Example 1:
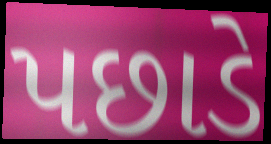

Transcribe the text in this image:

પછાડે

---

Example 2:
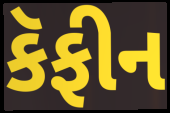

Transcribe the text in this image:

કૅફીન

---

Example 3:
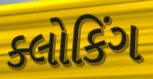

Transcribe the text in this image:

ક્લોકિંગ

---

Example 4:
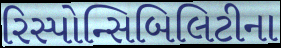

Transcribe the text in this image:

રિસ્પોન્સિબિલિટીના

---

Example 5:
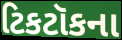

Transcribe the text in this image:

ટિકટૉકના